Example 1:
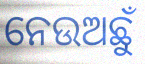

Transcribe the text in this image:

ନେଉଅଛୁଁ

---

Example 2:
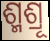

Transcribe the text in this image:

ଶ୍ମଶ୍ରୂ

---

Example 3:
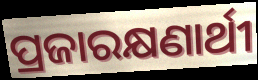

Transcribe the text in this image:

ପ୍ରଜାରକ୍ଷଣାର୍ଥୀ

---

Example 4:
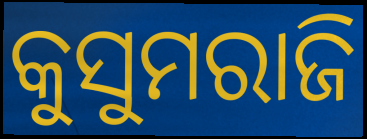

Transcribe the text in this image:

କୁସୁମରାଜି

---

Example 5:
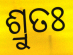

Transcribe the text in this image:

ଶ୍ରୁତଃ